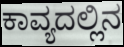
ಕಾವ್ಯದಲ್ಲಿನ